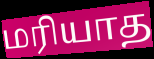
மரியாத